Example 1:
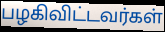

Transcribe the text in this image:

பழகிவிட்டவர்கள்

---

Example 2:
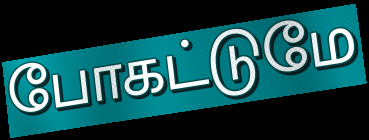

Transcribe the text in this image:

போகட்டுமே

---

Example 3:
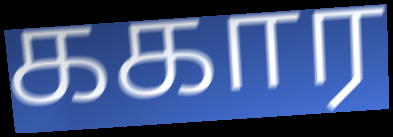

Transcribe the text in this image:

ககார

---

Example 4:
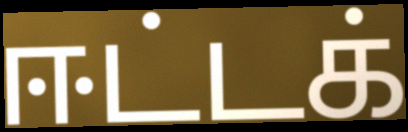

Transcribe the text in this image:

ஈட்டக்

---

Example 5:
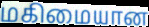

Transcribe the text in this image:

மகிமையான